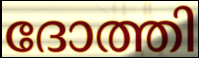
ദോത്തി